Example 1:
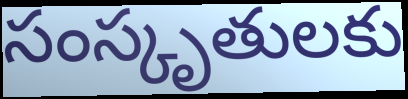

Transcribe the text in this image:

సంస్కృతులకు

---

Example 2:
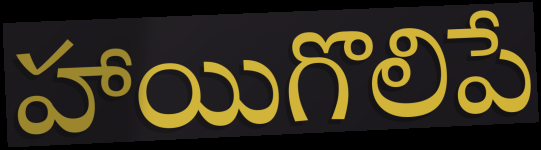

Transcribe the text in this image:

హాయిగొలిపే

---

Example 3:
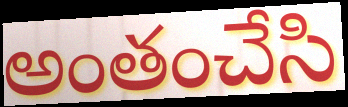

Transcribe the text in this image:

అంతంచేసి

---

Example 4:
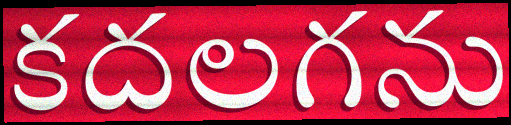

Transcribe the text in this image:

కదలగను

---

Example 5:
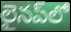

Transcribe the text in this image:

లైనప్‌లో